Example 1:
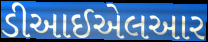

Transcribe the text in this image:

ડીઆઈએલઆર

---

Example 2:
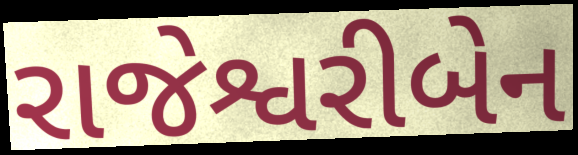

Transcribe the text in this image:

રાજેશ્વરીબેન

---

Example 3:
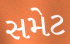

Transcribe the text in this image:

સમેટ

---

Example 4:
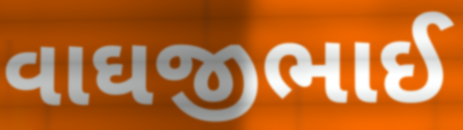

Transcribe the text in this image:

વાઘજીભાઈ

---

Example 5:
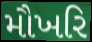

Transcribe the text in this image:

મૌખરિ